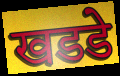
खडडे